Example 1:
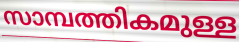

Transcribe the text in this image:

സാമ്പത്തികമുള്ള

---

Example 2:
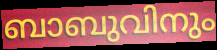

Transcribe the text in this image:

ബാബുവിനും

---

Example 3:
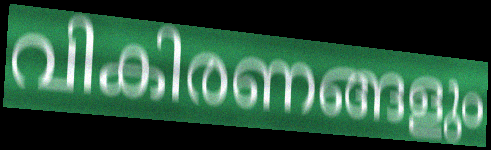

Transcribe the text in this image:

വികിരണങ്ങളും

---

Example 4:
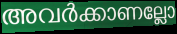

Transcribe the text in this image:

അവർക്കാണല്ലോ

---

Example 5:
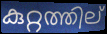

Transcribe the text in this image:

കുറ്റത്തില്